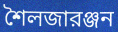
শৈলজারঞ্জন